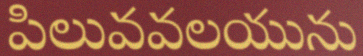
పిలువవలయును